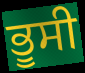
ਭੂਸੀ